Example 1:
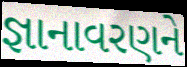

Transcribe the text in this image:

જ્ઞાનાવરણને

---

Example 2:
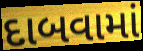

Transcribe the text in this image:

દાબવામાં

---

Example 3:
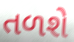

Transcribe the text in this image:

તળશે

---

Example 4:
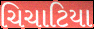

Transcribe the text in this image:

ચિચાટિયા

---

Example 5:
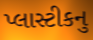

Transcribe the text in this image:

પ્લાસ્ટીકનુ